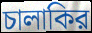
চালাকির